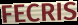
FECRIS